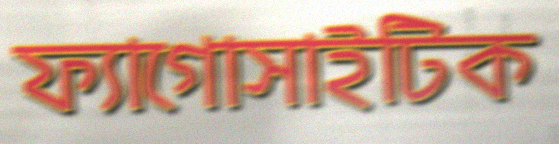
ফ্যাগোসাইটিক